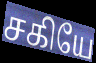
சகியே